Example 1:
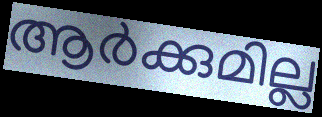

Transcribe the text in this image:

ആർക്കുമില്ല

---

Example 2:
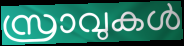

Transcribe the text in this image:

സ്രാവുകൾ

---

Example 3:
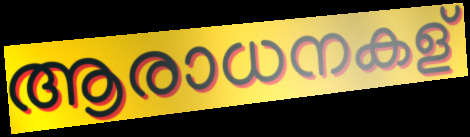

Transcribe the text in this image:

ആരാധനകള്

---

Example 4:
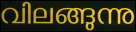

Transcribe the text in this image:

വിലങ്ങുന്നു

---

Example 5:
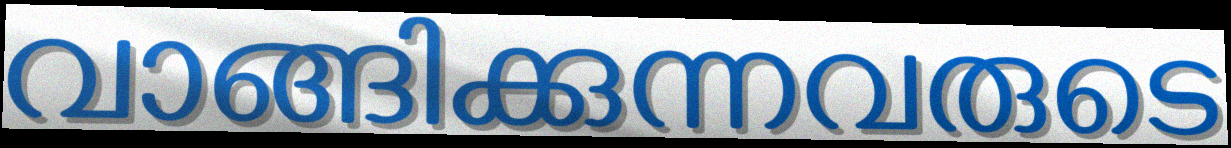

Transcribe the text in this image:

വാങ്ങിക്കുന്നവരുടെ